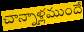
చాన్నాళ్లముందే